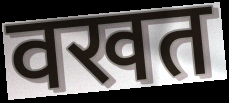
वखत